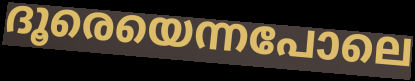
ദൂരെയെന്നപോലെ